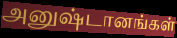
அனுஷ்டானங்கள்